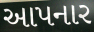
આપનાર